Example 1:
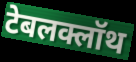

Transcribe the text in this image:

टेबलक्लॉथ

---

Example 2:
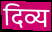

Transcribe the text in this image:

दिव्य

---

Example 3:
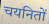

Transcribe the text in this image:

चयनितों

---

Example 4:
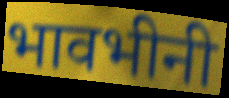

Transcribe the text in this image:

भावभीनी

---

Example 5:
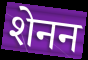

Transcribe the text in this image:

शेनन